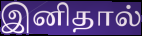
இனிதால்